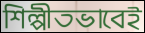
শিল্পীতভাবেই